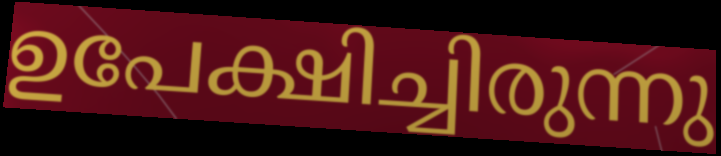
ഉപേക്ഷിച്ചിരുന്നു